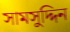
সামসুদ্দিন